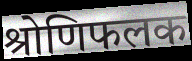
श्रोणिफलक